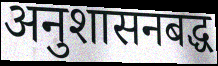
अनुशासनबद्ध